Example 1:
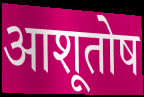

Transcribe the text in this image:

आशूतोष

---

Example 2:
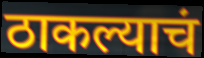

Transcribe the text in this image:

ठाकल्याचं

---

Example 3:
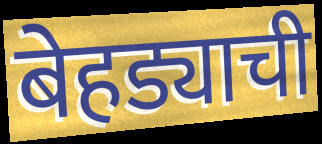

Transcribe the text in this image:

बेहड्याची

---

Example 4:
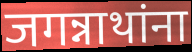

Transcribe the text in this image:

जगन्नाथांना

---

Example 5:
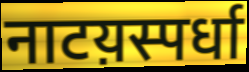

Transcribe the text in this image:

नाटय़स्पर्धा